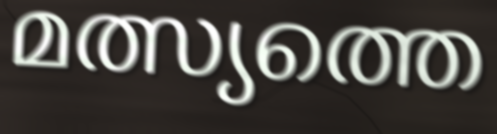
മത്സ്യത്തെ